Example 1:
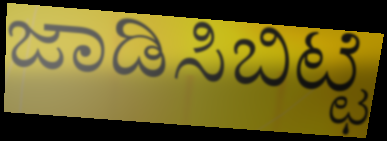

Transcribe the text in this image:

ಜಾಡಿಸಿಬಿಟ್ಟೆ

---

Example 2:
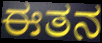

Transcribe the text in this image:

ಈತನ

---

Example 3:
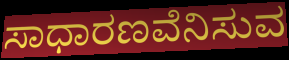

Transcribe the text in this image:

ಸಾಧಾರಣವೆನಿಸುವ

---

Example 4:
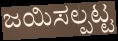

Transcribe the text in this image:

ಜಯಿಸಲ್ಪಟ್ಟ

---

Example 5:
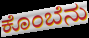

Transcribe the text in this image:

ಕೊಂಬೆನು